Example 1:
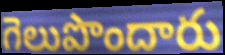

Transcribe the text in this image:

గెలుపొందారు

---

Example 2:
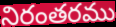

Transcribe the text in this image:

నిరంతరము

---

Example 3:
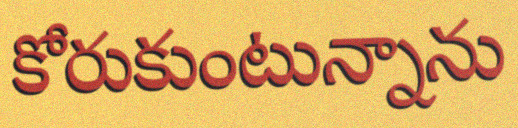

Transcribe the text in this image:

కోరుకుంటున్నాను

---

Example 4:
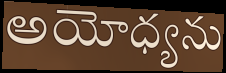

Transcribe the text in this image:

అయోధ్యను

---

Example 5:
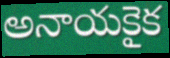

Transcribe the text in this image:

అనాయకైక